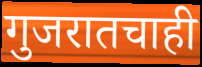
गुजरातचाही